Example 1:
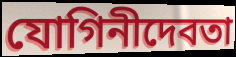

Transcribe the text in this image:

যোগিনীদেবতা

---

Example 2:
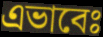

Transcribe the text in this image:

এভাবেঃ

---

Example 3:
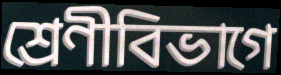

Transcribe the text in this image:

শ্রেণীবিভাগে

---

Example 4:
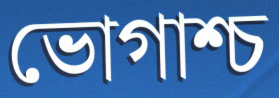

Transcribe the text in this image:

ভোগাশ্চ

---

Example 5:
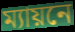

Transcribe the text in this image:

ম্যায়নে